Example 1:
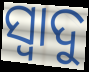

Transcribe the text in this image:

ସ୍ଵାଦୁ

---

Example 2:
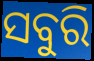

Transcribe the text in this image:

ସବୁରି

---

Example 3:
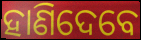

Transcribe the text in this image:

ହାଣିଦେବେ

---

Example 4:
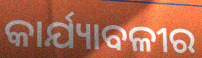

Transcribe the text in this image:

କାର୍ଯ୍ୟାବଳୀର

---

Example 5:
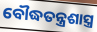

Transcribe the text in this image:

ବୌଦ୍ଧତନ୍ତ୍ରଶାସ୍ତ୍ର